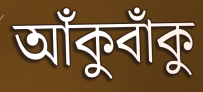
আঁকুবাঁকু